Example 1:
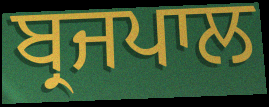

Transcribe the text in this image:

ਬ੍ਰਜਪਾਲ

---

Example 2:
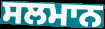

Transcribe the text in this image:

ਸਲਮਾਨ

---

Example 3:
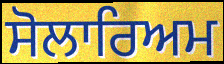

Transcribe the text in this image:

ਸੋਲਾਰਿਅਮ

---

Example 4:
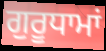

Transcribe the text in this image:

ਗੁਰੂਧਾਮਾਂ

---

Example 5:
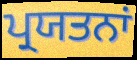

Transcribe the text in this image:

ਪ੍ਰਯਤਨਾਂ